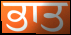
ਭਾਤ